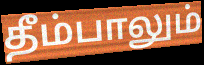
தீம்பாலும்